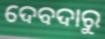
ଦେବଦାରୁ